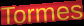
Tormes